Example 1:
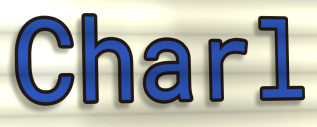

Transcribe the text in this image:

Charl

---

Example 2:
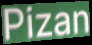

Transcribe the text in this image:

Pizan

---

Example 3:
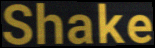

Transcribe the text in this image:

Shake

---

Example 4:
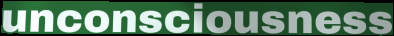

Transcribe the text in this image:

unconsciousness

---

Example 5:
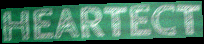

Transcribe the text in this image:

HEARTECT